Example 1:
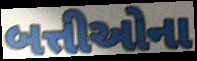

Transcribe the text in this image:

બત્તીઓના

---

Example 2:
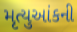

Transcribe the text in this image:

મૃત્યુઆંકની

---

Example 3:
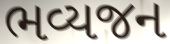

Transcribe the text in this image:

ભવ્યજન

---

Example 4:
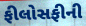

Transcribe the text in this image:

ફીલોસફીની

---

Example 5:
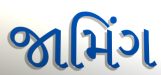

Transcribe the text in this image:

જામિંગ